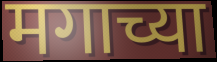
मगाच्या